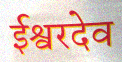
ईश्वरदेव